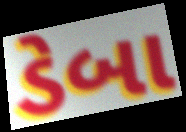
ડેબા